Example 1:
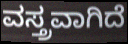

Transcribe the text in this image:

ವಸ್ತ್ರವಾಗಿದೆ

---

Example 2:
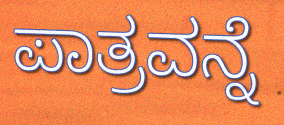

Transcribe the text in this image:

ಪಾತ್ರವನ್ನೆ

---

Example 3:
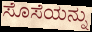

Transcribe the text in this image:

ಸೊಸೆಯನ್ನು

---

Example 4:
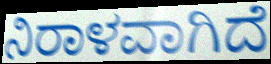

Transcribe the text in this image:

ನಿರಾಳವಾಗಿದೆ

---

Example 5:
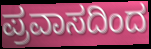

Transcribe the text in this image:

ಪ್ರವಾಸದಿಂದ